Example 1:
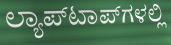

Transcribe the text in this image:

ಲ್ಯಾಪ್‌ಟಾಪ್‌ಗಳಲ್ಲಿ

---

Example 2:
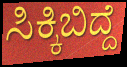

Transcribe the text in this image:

ಸಿಕ್ಕಿಬಿದ್ದೆ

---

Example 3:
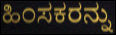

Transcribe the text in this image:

ಹಿಂಸಕರನ್ನು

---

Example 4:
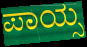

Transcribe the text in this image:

ಪಾಯ್ಸ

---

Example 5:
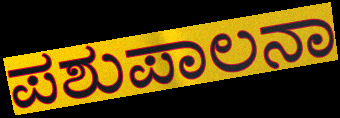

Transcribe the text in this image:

ಪಶುಪಾಲನಾ